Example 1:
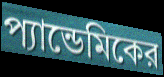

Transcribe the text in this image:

প্যান্ডেমিকের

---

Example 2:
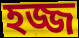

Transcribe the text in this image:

হজ্জ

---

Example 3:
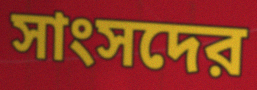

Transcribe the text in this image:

সাংসদের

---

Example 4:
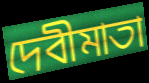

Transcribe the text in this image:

দেবীমাতা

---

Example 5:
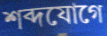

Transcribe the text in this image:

শব্দযোগে